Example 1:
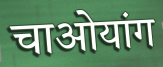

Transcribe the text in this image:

चाओयांग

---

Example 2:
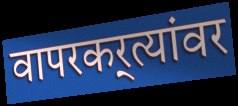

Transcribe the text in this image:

वापरकर्त्यांवर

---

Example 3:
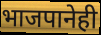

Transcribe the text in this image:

भाजपानेही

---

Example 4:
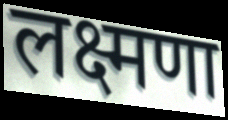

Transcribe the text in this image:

लक्ष्मणा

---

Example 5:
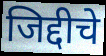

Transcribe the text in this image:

जिद्दीचे